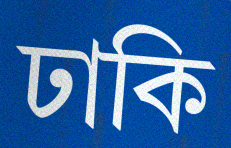
ঢাকি